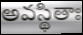
అవస్థితాః